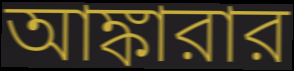
আঙ্কারার